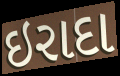
ઇરાદા